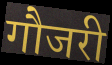
गौजरी